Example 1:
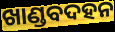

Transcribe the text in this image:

ଖାଣ୍ଡବଦହନ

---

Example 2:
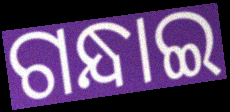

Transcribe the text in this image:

ଗନ୍ଧାଇ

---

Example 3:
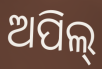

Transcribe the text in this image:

ଅପିଲ୍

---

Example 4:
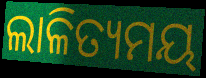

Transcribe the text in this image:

ଲାଳିତ୍ୟମୟ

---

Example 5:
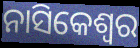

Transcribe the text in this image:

ନାସିକେଶ୍ୱର